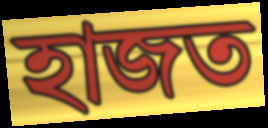
হাজত